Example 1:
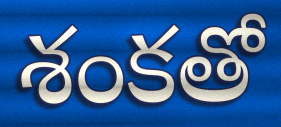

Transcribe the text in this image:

శంకతో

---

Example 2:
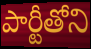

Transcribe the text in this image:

పార్టీతోని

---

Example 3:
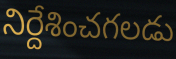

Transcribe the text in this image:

నిర్దేశించగలడు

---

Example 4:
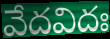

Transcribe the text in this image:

వేదవిదః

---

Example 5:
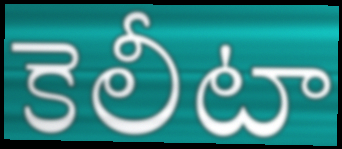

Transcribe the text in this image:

కెలీటా